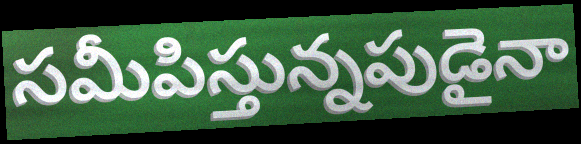
సమీపిస్తున్నపుడైనా